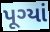
પૂગ્યાં